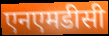
एनएमडीसी